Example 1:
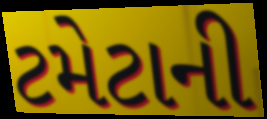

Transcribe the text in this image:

ટમેટાની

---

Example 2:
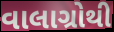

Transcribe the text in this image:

વાલાગ્રોથી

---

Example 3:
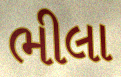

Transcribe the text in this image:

ભીલા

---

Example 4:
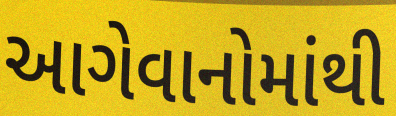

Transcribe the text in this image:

આગેવાનોમાંથી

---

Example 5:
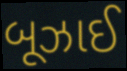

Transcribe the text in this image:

બૂઝાઈ